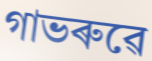
গাভৰুৱে